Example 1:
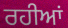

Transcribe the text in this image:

ਰਹੀਆਂ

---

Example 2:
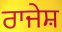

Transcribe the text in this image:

ਰਾਜੇਸ਼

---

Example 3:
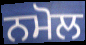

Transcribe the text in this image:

ਨਮੋਲ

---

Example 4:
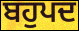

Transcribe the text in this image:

ਬਹੁਪਦ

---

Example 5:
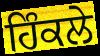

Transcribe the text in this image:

ਹਿੰਕਲੇ